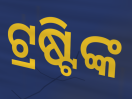
ଟ୍ରଷ୍ଟିଙ୍କ